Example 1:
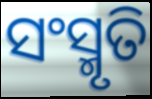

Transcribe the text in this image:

ସଂସ୍ମୃତି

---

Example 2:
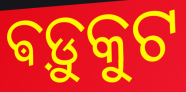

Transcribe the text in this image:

ଵଡ଼ୁକୁଟ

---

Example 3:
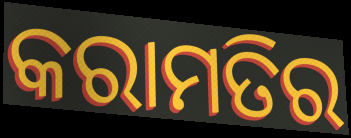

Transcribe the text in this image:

କରାମତିର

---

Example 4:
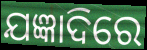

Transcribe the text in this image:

ଯଜ୍ଞାଦିରେ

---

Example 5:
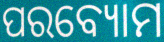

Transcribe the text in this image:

ପରବ୍ୟୋମ